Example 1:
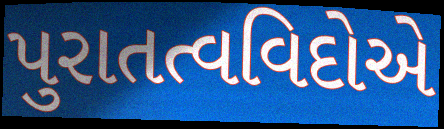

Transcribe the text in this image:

પુરાતત્વવિદોએ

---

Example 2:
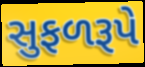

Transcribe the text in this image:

સુફળરૂપે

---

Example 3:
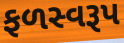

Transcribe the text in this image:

ફળસ્વરૂપ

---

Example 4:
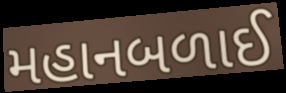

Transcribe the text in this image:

મહાનબળાઈ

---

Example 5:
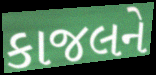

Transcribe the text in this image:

કાજલને